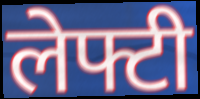
लेफ्टी